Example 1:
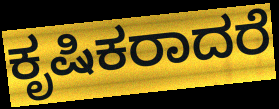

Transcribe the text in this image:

ಕೃಷಿಕರಾದರೆ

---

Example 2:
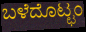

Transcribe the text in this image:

ಬಳೆದೊಟ್ಟಂ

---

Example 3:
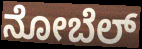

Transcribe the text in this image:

ನೋಬೆಲ್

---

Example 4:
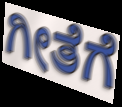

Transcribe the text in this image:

ಗೀತೆಗೆ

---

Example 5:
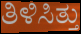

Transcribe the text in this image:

ತಿಳಿಸಿತ್ತು